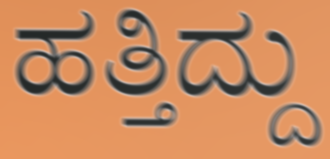
ಹತ್ತಿದ್ದು